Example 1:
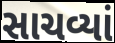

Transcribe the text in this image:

સાચવ્યાં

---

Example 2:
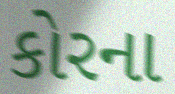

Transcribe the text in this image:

કોરના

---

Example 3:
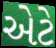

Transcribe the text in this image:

એટે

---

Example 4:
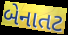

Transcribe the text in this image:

બેનાતટ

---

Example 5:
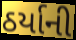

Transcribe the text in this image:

ઠર્યાની